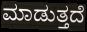
ಮಾಡುತ್ತದೆ